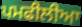
ਪਮਫੀਲੀਆ